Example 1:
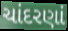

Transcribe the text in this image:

ચાંદરણાં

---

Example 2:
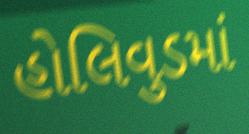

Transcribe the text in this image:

હોલિવુડમાં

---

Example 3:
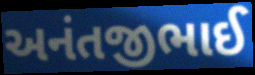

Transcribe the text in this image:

અનંતજીભાઈ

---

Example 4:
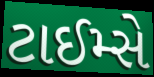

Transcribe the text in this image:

ટાઈમ્સે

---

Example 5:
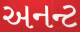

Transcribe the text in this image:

અનન્ટ